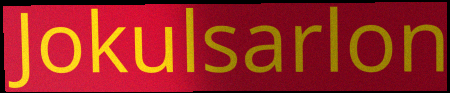
Jokulsarlon